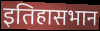
इतिहासभान